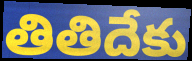
తితిదేకు